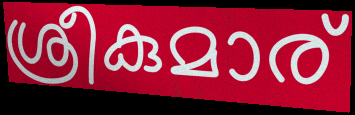
ശ്രീകുമാര്